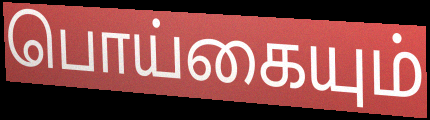
பொய்கையும்